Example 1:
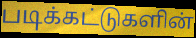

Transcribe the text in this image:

படிக்கட்டுகளின்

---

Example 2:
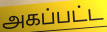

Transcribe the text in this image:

அகப்பட்ட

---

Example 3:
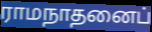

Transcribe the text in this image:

ராமநாதனைப்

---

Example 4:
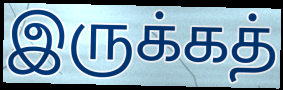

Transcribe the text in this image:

இருக்கத்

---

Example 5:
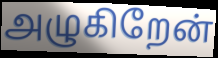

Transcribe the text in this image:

அழுகிறேன்